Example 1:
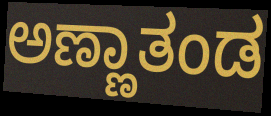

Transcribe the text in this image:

ಅಣ್ಣಾತಂಡ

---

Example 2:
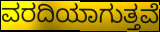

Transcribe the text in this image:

ವರದಿಯಾಗುತ್ತವೆ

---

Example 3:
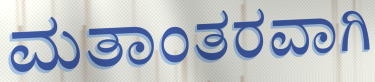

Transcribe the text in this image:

ಮತಾಂತರವಾಗಿ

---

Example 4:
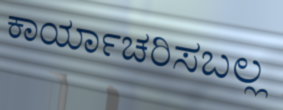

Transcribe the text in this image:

ಕಾರ್ಯಾಚರಿಸಬಲ್ಲ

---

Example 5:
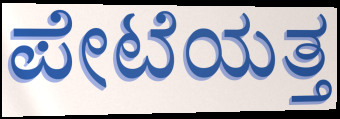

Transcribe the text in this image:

ಪೇಟೆಯತ್ತ